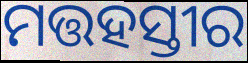
ମତ୍ତହସ୍ତୀର